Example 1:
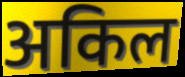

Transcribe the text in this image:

अकिल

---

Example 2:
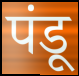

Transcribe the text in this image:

पंडू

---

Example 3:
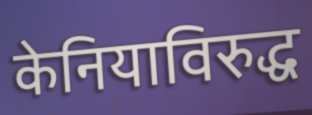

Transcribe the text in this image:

केनियाविरुद्ध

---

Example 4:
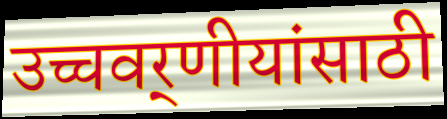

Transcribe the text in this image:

उच्चवर्णीयांसाठी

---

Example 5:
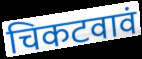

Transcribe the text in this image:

चिकटवावं